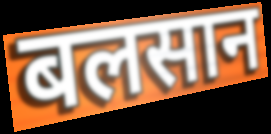
बलसान